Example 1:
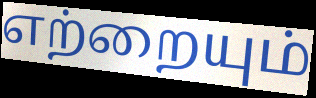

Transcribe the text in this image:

எற்றையும்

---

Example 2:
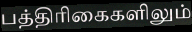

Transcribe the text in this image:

பத்திரிகைகளிலும்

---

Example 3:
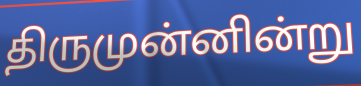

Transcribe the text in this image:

திருமுன்னின்று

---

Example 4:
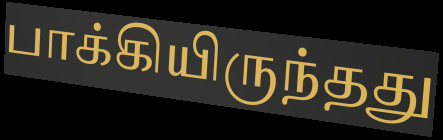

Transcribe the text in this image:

பாக்கியிருந்தது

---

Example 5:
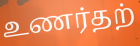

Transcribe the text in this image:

உணர்தற்